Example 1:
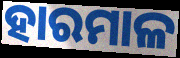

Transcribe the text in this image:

ହାରମାଳ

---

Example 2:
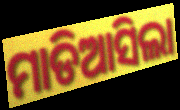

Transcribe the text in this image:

ମାଡିଆସିଲା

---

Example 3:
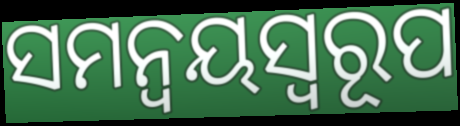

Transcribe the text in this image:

ସମନ୍ୱୟସ୍ୱରୂପ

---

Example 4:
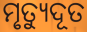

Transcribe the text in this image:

ମୃତ୍ୟୁଦୂତ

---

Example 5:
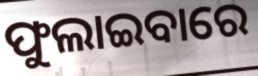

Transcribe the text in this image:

ଫୁଲାଇବାରେ